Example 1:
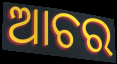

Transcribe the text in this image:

ଆଚର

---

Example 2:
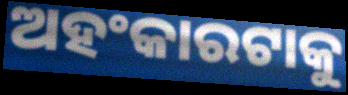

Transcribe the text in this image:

ଅହଂକାରଟାକୁ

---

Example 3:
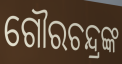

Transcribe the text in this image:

ଗୌରଚନ୍ଦ୍ରଙ୍କ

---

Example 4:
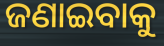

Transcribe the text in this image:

ଜଣାଇବାକୁ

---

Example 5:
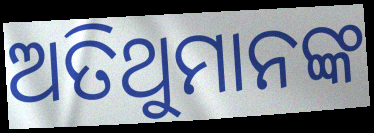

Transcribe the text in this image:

ଅତିଥୁମାନଙ୍କ